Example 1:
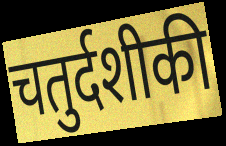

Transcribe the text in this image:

चतुर्दशीकी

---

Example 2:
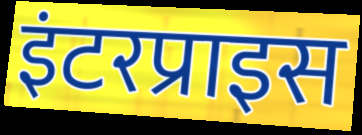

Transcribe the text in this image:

इंटरप्राइस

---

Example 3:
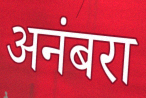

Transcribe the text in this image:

अनंबरा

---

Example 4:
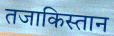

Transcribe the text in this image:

तजाकिस्‍तान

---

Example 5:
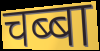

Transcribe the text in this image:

चब्बा